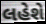
લહેશે